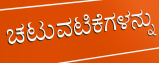
ಚಟುವಟಿಕೆಗಳನ್ನು